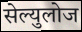
सेल्युलोज